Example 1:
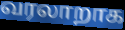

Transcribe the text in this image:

வரலாறாக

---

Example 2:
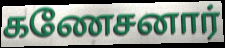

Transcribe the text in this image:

கணேசனார்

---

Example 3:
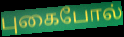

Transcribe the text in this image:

புகைபோல்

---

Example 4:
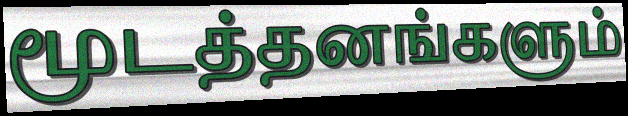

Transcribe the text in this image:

மூடத்தனங்களும்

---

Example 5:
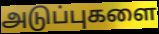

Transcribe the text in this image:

அடுப்புகளை